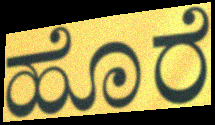
ಹೊರೆ